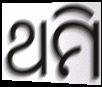
ଥମି